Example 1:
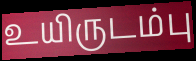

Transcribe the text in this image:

உயிருடம்பு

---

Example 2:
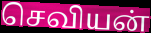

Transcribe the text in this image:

செவியன்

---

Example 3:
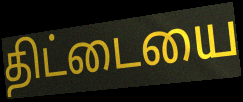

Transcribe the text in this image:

திட்டையை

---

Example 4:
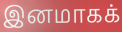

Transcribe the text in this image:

இனமாகக்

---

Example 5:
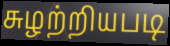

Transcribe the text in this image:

சுழற்றியபடி